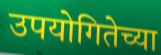
उपयोगितेच्या